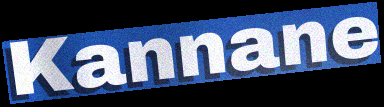
Kannane